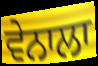
ਵੇਨਾਲਾ